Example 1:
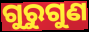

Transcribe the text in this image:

ଗୁରୁଗୁଣ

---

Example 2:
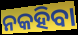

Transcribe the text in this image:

ନକହିବା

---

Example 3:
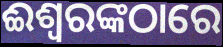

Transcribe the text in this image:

ଈଶ୍ୱରଙ୍କଠାରେ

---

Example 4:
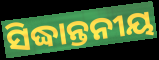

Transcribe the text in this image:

ସିଦ୍ଧାନ୍ତନୀୟ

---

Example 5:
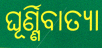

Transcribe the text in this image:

ଘୂର୍ଣ୍ଣିବାତ୍ୟା